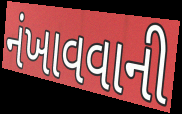
નંખાવવાની